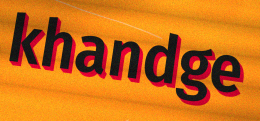
khandge